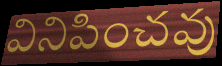
వినిపించవు